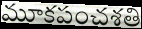
మూకపంచశతి